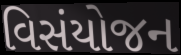
વિસંયોજન